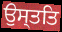
ਉਸ੍ਤਤਿ